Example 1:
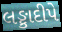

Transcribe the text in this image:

લઙ્કાદીપે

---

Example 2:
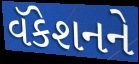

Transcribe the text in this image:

વૅકેશનને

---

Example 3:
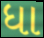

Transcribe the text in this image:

ધા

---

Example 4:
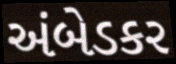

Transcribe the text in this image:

અંબેડકર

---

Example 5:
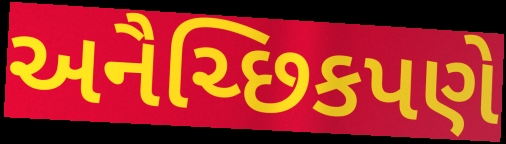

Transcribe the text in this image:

અનૈચ્છિકપણે